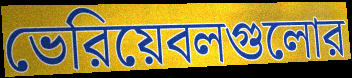
ভেরিয়েবলগুলোর